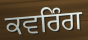
ਕਵਰਿੰਗ